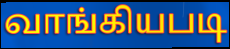
வாங்கியபடி